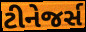
ટીનેજર્સ